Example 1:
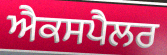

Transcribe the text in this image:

ਐਕਸਪੈਲਰ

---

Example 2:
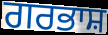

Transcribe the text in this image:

ਗਰਭਾਸ਼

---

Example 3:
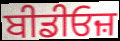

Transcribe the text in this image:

ਬੀਡੀਓਜ਼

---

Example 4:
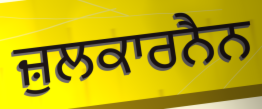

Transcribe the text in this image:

ਜ਼ੁਲਕਾਰਨੈਨ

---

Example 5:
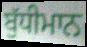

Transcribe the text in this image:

ਬੁੱਧੀਮਾਨ